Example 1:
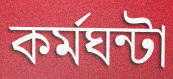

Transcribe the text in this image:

কর্মঘন্টা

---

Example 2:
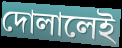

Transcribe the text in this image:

দোলালেই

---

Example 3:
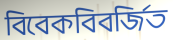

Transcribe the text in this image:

বিবেকবিবর্জিত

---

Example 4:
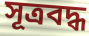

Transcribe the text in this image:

সূত্রবদ্ধ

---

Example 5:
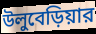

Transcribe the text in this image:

উলুবেড়িয়ার